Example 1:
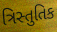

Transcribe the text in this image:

ત્રિસ્તુતિક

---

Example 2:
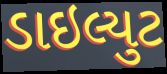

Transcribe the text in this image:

ડાઇલ્યુટ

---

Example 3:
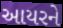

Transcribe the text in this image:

આયરને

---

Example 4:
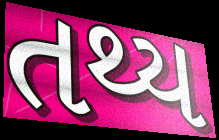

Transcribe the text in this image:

તથ્ય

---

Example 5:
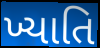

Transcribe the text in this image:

ખ્યાતિ